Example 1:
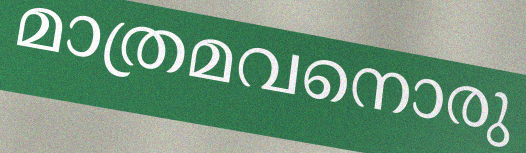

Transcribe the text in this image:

മാത്രമവനൊരു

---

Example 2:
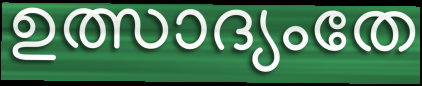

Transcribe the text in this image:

ഉത്സാദ്യംതേ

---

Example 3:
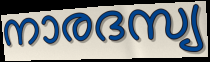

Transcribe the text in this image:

നാരദസ്യ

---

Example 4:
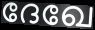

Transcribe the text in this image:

ദേഖേ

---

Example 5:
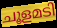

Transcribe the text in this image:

ചൂളമടി